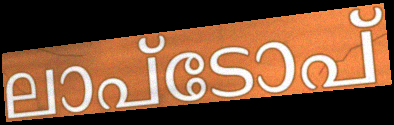
ലാപ്ടോപ്